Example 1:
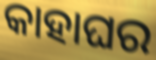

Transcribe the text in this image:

କାହାଘର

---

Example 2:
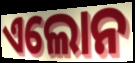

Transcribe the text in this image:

ଏଲୋନ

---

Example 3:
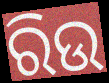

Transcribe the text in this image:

ରିଉ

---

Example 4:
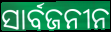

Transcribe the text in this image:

ସାର୍ବଜନୀନ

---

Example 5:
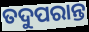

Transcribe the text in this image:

ତଦୁପରାନ୍ତ